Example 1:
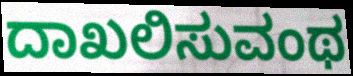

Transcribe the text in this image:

ದಾಖಲಿಸುವಂಥ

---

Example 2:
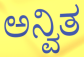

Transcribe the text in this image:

ಅನ್ವಿತ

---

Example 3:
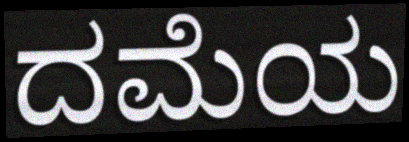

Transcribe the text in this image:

ದಮೆಯ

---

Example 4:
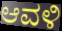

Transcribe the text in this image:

ಆವಳಿ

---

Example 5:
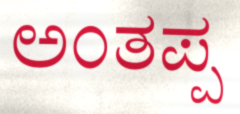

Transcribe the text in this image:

ಅಂತಪ್ಪ